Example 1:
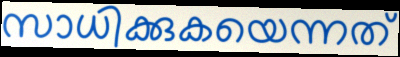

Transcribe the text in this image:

സാധിക്കുകയെന്നത്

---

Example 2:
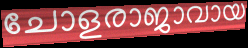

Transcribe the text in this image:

ചോളരാജാവായ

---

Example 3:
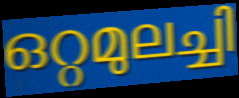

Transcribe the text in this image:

ഒറ്റമുലച്ചി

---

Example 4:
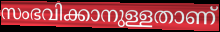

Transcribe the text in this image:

സംഭവിക്കാനുള്ളതാണ്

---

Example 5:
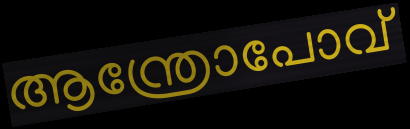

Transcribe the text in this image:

ആന്ത്രോപോവ്